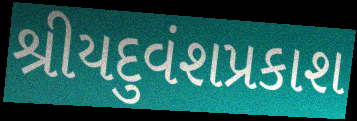
શ્રીયદુવંશપ્રકાશ